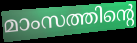
മാംസത്തിന്റെ